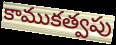
కాముకత్వపు